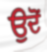
ਉਦੋਂ